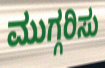
ಮುಗ್ಗರಿಸು